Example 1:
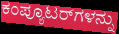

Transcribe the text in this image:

ಕಂಪ್ಯೂಟರ್‌ಗಳನ್ನು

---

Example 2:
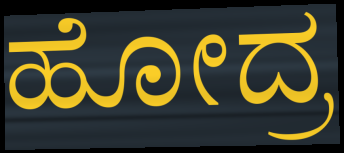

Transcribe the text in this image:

ಹೋದ್ರ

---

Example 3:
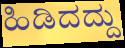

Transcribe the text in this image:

ಹಿಡಿದದ್ದು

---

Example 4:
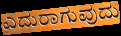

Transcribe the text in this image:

ಎದುರಾಗುವುದು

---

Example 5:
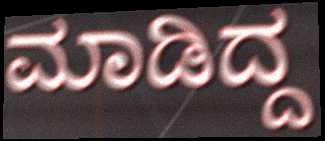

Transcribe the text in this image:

ಮಾಡಿದ್ದ